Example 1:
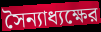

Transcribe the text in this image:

সৈন্যাধ্যক্ষের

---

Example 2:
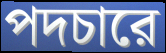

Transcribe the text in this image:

পদচারে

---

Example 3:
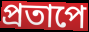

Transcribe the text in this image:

প্রতাপে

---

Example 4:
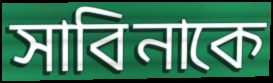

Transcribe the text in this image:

সাবিনাকে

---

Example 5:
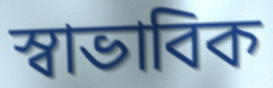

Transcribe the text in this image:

স্বাভাবিক